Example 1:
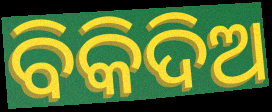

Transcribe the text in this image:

ବିକିଦିଅ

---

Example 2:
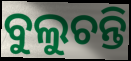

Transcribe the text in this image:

ବୁଲୁଚନ୍ତି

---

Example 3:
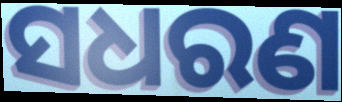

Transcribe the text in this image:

ସଧରଣ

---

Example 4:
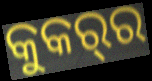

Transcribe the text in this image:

କୁକର୍‌ର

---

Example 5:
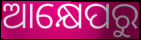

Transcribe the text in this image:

ଆକ୍ଷେପରୁ